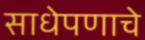
साधेपणाचे